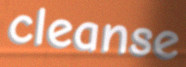
cleanse